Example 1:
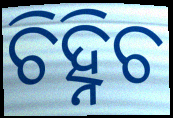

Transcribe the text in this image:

ଚିହ୍ନିଚ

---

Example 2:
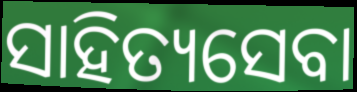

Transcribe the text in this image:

ସାହିତ୍ୟସେବା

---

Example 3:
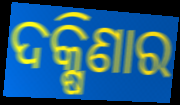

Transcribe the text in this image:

ଦକ୍ଷିଣାର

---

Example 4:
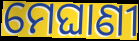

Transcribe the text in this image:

ମେଘାଣୀ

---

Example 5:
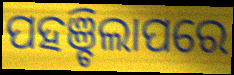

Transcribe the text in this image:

ପହଞ୍ଚିଲାପରେ